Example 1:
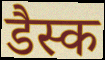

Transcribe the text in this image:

डैस्क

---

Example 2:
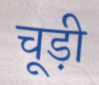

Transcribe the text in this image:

चूड़ी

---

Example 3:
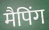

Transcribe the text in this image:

मैपिंग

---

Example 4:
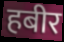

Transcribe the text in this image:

हबीर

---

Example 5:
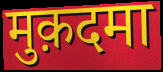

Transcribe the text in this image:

मुक़दमा